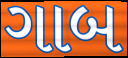
ગાબ